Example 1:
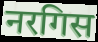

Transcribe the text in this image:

नरगिस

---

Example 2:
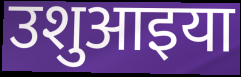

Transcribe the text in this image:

उशुआइया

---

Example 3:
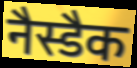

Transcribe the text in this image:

नैस्डैक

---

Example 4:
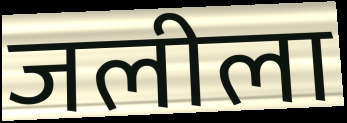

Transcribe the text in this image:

जलीला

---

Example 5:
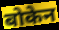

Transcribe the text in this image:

बोकेन